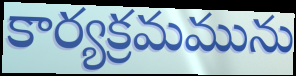
కార్యక్రమమును